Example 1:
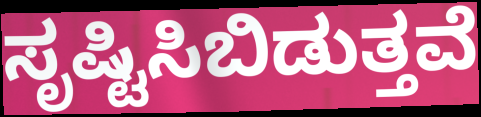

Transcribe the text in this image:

ಸೃಷ್ಟಿಸಿಬಿಡುತ್ತವೆ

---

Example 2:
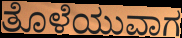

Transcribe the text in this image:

ತೊಳೆಯುವಾಗ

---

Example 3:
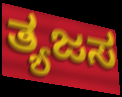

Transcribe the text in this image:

ತ್ಯಜಸ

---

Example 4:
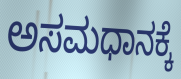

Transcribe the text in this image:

ಅಸಮಧಾನಕ್ಕೆ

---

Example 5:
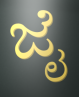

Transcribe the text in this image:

ಜೈ